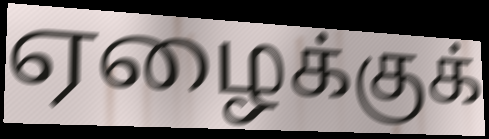
ஏழைக்குக்